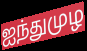
ஐந்துமுழ